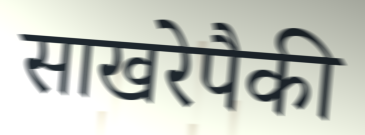
साखरेपैकी